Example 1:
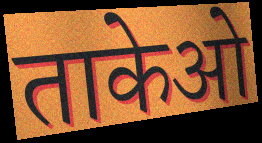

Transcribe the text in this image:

ताकेओ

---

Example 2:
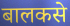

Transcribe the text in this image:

बालकसे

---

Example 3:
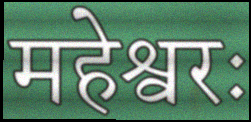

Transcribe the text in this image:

महेश्वरः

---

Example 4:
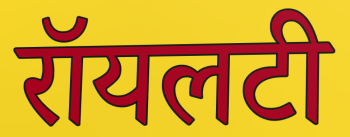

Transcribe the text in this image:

रॉयलटी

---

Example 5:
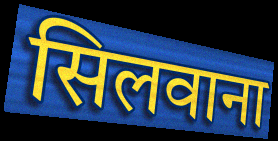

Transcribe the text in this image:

सिलवाना